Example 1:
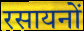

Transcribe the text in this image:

रसायनों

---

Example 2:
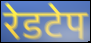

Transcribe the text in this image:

रेडटेप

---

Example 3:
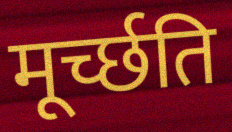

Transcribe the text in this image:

मूर्च्छति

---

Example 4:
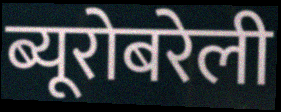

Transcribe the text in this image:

ब्यूरोबरेली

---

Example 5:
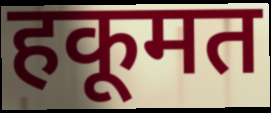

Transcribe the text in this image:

हकूमत